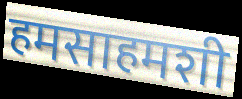
हमसाहमशी